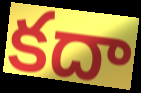
కదా